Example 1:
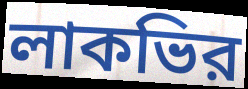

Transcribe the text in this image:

লাকভির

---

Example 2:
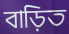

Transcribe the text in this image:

বাড়িত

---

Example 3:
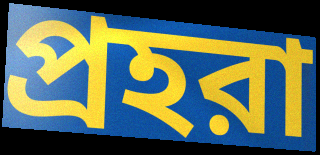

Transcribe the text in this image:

প্রহরা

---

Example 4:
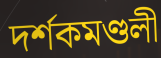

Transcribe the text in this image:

দর্শকমণ্ডলী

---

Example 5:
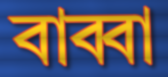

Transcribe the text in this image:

বাব্বা